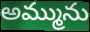
అమ్మును